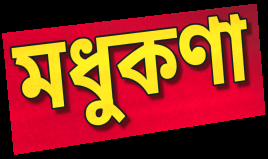
মধুকণা